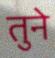
तुने